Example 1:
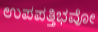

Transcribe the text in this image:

ಉಪಪತ್ತಿಭವೋ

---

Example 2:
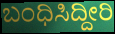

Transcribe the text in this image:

ಬಂಧಿಸಿದ್ದೀರಿ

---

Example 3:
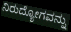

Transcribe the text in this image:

ನಿರುದ್ಯೋಗವನ್ನು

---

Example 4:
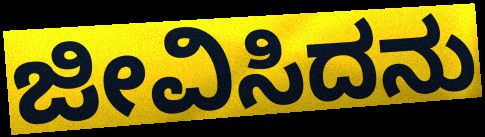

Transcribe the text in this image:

ಜೀವಿಸಿದನು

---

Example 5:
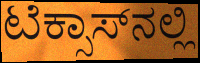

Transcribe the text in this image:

ಟೆಕ್ಸಾಸ್‌ನಲ್ಲಿ